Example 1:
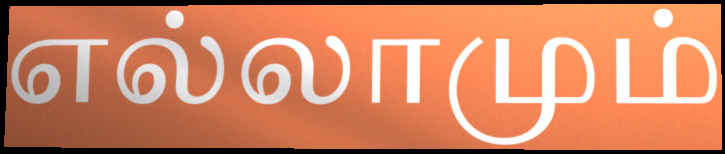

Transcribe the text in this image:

எல்லாமும்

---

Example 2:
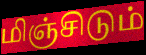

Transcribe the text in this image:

மிஞ்சிடும்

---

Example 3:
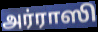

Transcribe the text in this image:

அர்ராஸி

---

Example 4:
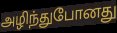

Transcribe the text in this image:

அழிந்துபோனது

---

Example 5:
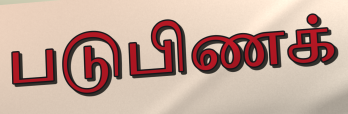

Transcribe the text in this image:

படுபிணக்